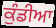
ਕੁੰਡੀਆ